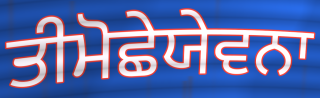
ਤੀਮੋਛੇਯੇਵਨਾ